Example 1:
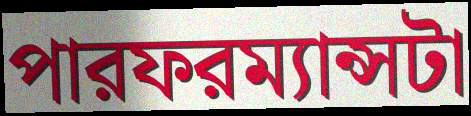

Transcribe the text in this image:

পারফরম্যান্সটা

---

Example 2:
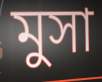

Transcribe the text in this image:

মুসা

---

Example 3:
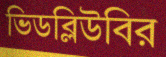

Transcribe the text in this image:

ভিডব্লিউবির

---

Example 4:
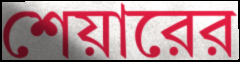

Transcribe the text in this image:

শেয়ারের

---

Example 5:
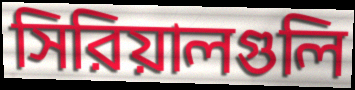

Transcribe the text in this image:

সিরিয়ালগুলি